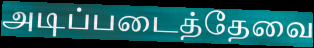
அடிப்படைத்தேவை